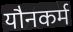
यौनकर्म